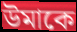
উমাকে